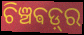
ଚିଞ୍ଚଵଡ଼୍‌ର